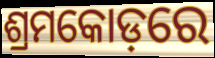
ଶ୍ରମକୋଡ଼ରେ